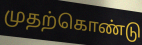
முதற்கொண்டு